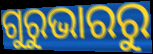
ଗୁରୁଭାରରୁ